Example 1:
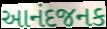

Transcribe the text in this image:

આનંદજનક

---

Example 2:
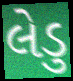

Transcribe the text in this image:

લેડુ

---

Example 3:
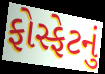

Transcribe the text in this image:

ફોસ્ફેટનું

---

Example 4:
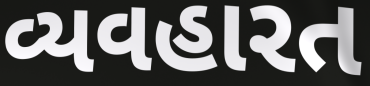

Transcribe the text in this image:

વ્યવહારત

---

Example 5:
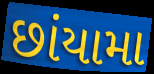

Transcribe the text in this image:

છાંયામા